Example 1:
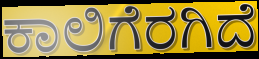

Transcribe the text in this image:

ಕಾಲಿಗೆರಗಿದೆ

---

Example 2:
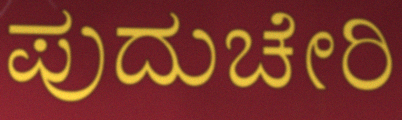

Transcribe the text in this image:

ಪುದುಚೇರಿ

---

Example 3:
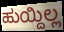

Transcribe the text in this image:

ಹುಯ್ದಿಲ್ಲ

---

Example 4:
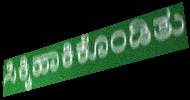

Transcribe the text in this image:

ಸಿಕ್ಕಿಹಾಕಿಕೊಂಡಿತು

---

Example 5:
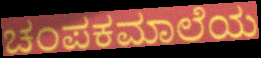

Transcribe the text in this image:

ಚಂಪಕಮಾಲೆಯ